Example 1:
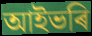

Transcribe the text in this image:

আইভৰি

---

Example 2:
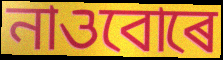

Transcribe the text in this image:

নাওবোৰে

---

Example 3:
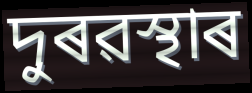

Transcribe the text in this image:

দুৰৱস্থাৰ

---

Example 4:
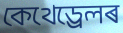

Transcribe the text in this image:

কেথেড্ৰেলৰ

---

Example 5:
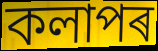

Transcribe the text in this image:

কলাপৰ